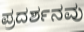
ಪ್ರದರ್ಶನವು